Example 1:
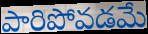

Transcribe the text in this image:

పారిపోవడమే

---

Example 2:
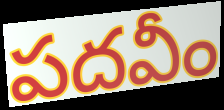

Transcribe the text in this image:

పదవీం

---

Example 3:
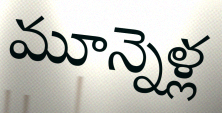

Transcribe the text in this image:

మూన్నెళ్ల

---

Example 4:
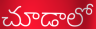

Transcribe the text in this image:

చూడాలో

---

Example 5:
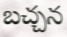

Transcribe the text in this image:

బచ్చన